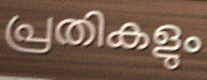
പ്രതികളും